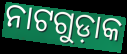
ନାଟଗୁଡ଼ାକ